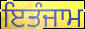
ਇਤੰਜਾਮ